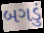
બગડું